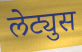
लेट्युस